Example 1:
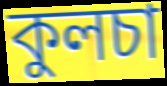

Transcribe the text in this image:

কুলচা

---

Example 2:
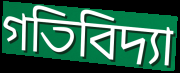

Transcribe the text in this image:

গতিবিদ্যা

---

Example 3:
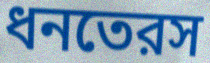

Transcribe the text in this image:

ধনতেরস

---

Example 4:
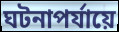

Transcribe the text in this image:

ঘটনাপর্যায়ে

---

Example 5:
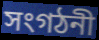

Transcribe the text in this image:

সংগঠনী